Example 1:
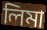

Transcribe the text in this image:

লিমা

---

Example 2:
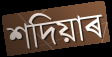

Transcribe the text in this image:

শদিয়াৰ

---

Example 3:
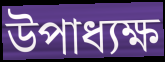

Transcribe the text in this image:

উপাধ্যক্ষ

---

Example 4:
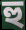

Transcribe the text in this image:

হু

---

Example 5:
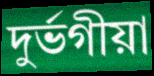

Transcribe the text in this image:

দুৰ্ভগীয়া